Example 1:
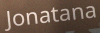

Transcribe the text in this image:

Jonatana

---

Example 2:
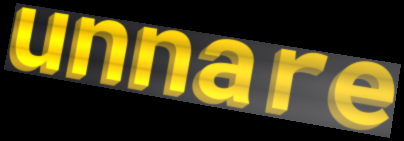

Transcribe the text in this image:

unnare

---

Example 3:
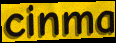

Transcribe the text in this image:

cinma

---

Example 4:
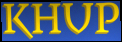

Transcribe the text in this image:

KHUP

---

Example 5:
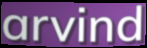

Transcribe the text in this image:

arvind